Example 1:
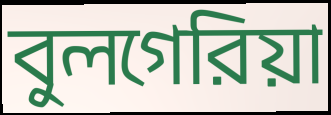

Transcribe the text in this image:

বুলগেরিয়া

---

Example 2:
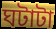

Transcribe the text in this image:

ঘটাটা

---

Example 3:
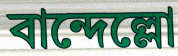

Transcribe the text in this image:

বান্দেল্লো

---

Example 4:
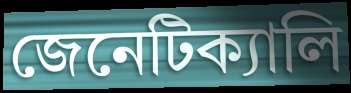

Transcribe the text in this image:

জেনেটিক্যালি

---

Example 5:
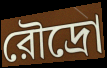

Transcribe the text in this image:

রৌদ্রো